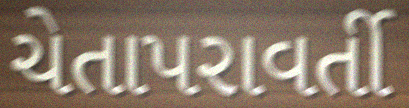
ચેતાપરાવર્તી